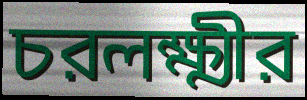
চরলক্ষ্মীর